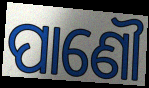
ପାଣୌ